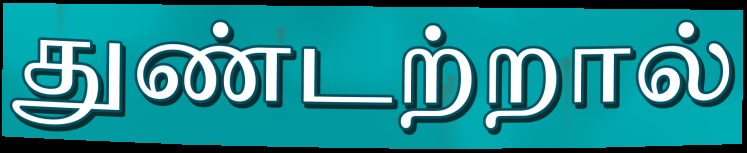
துண்டற்றால்